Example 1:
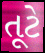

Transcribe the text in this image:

તૂટે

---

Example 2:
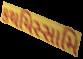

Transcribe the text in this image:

કથયિસ્સામિ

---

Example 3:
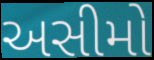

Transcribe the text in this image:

અસીમો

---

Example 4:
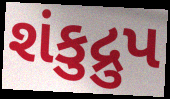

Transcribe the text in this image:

શંકુદ્રુપ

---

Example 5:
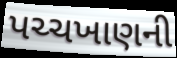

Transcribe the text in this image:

પચ્ચખાણની